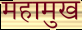
महामुख